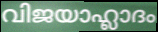
വിജയാഹ്ലാദം